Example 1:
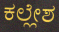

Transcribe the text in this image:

ಕಲ್ಲೇಶ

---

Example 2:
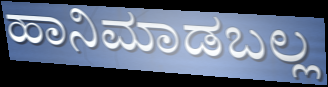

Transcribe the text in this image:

ಹಾನಿಮಾಡಬಲ್ಲ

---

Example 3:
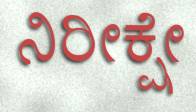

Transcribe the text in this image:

ನಿರೀಕ್ಷೇ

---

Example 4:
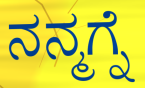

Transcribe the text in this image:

ನನ್ಮಗ್ನೆ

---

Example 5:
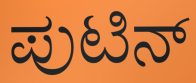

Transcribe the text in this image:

ಪುಟಿನ್